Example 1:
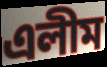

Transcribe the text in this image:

এলীম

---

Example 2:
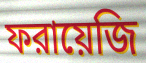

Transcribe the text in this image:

ফরায়েজি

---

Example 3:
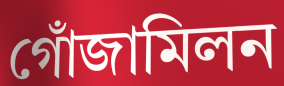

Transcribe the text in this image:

গোঁজামিলন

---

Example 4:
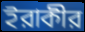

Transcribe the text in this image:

ইরাকীর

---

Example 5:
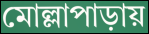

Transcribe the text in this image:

মোল্লাপাড়ায়